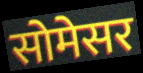
सोमेसर